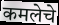
कमलेचे